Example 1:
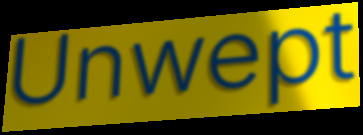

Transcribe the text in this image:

Unwept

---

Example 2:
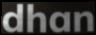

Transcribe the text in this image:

dhan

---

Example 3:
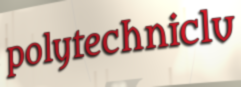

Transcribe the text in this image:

polytechniclu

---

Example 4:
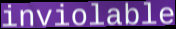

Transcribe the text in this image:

inviolable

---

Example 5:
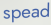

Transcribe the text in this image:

spead